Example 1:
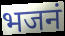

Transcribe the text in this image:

भजनं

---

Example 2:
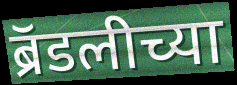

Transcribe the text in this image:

ब्रॅडलीच्या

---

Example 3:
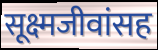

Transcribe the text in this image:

सूक्ष्मजीवांसह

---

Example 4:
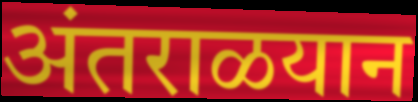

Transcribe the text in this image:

अंतराळयान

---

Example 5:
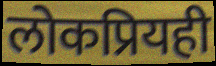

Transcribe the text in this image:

लोकप्रियही